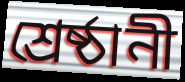
শ্রেষ্ঠানী